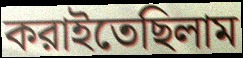
করাইতেছিলাম